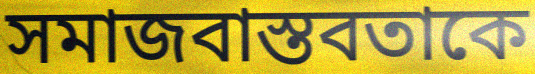
সমাজবাস্তবতাকে